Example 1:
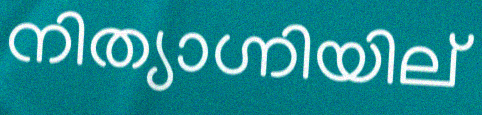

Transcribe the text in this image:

നിത്യാഗ്നിയില്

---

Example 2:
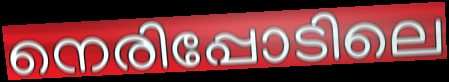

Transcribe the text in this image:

നെരിപ്പോടിലെ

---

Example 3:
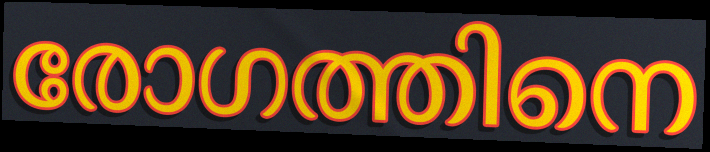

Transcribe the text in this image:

രോഗത്തിനെ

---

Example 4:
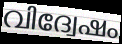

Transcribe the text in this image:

വിദ്വേഷം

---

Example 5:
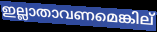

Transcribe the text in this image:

ഇല്ലാതാവണമെങ്കില്